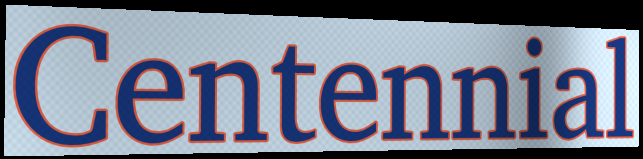
Centennial